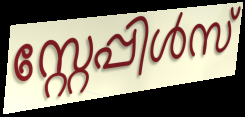
സ്റ്റേപ്പിൾസ്